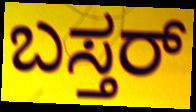
ಬಸ್ತರ್